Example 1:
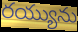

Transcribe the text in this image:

రయ్యును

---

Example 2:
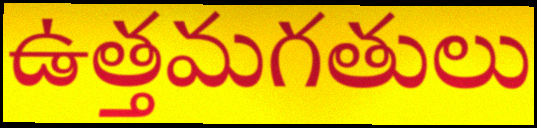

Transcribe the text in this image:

ఉత్తమగతులు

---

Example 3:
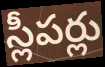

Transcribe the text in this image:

స్లీపర్లు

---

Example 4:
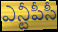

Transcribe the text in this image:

ఎన్టీపీసీ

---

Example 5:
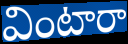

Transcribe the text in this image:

వింటారా